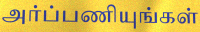
அர்ப்பணியுங்கள்